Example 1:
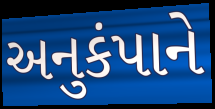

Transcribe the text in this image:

અનુકંપાને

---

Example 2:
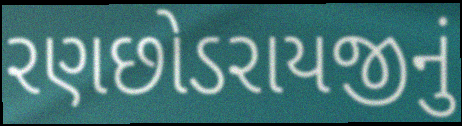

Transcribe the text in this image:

રણછોડરાયજીનું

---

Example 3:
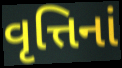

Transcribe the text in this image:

વૃત્તિનાં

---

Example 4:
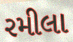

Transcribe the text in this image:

રમીલા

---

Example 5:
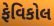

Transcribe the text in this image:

ફેવિકોલ